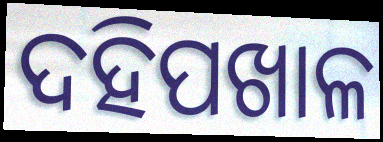
ଦହିପଖାଳ